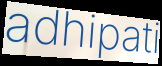
adhipati